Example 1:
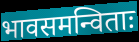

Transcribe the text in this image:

भावसमन्विताः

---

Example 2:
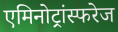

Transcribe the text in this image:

एमिनोट्रांस्फरेज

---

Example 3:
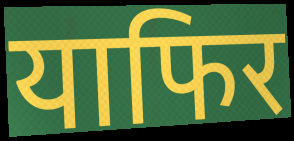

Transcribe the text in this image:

याफिर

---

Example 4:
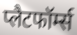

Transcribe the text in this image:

प्लैटफॉर्म्स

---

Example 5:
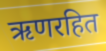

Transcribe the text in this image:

ऋणरहित